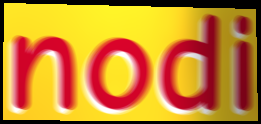
nodi